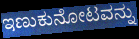
ಇಣುಕುನೋಟವನ್ನು